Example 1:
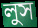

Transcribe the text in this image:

লুস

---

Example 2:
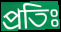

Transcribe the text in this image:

প্রতিঃ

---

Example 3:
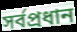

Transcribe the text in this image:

সর্বপ্রধান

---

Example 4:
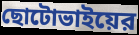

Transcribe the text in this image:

ছোটোভাইয়ের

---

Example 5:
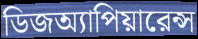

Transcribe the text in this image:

ডিজঅ্যাপিয়ারেন্স